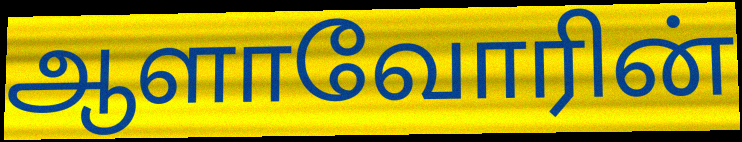
ஆளாவோரின்